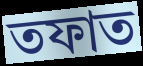
তফাত